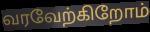
வரவேற்கிறோம்